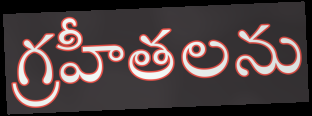
గ్రహీతలను